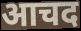
आचद